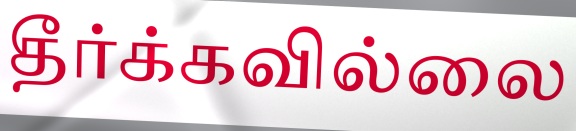
தீர்க்கவில்லை